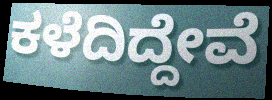
ಕಳೆದಿದ್ದೇವೆ